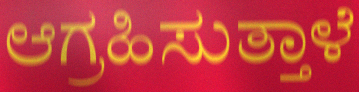
ಆಗ್ರಹಿಸುತ್ತಾಳೆ